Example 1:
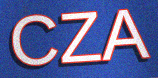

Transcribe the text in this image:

CZA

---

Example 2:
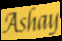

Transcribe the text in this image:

Ashay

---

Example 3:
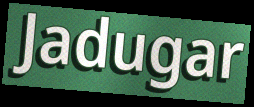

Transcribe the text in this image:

Jadugar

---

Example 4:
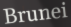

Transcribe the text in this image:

Brunei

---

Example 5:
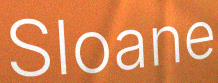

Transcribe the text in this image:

Sloane